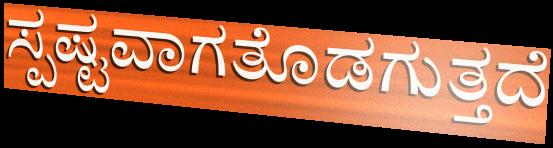
ಸ್ಪಷ್ಟವಾಗತೊಡಗುತ್ತದೆ